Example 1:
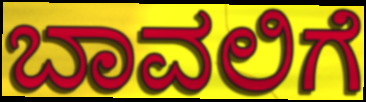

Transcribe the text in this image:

ಬಾವಲಿಗೆ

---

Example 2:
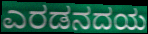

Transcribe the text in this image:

ಎರಡನದಯ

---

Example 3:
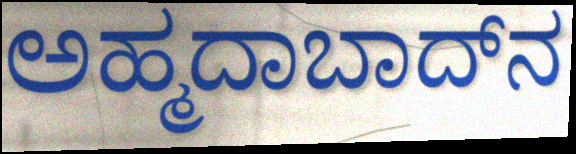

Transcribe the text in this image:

ಅಹ್ಮದಾಬಾದ್‌ನ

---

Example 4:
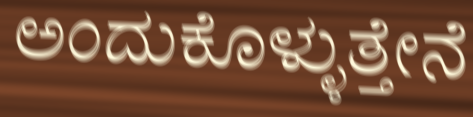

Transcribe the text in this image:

ಅಂದುಕೊಳ್ಳುತ್ತೇನೆ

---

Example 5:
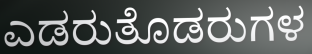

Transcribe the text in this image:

ಎಡರುತೊಡರುಗಳ